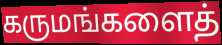
கருமங்களைத்